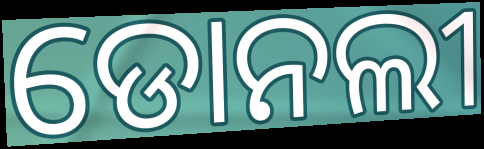
ଡୋନଲୀ